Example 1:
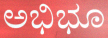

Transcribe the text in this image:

ಅಭಿಭೂ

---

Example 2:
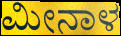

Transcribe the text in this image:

ಮೀನಾಳ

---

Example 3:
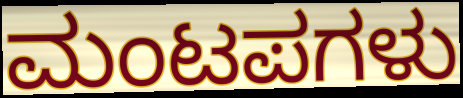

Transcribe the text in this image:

ಮಂಟಪಗಳು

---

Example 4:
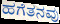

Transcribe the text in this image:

ಹಗೆತನವು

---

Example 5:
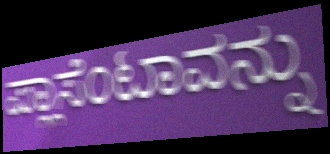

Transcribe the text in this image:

ಪ್ಲಾಸೆಂಟಾವನ್ನು